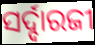
ସର୍ଦ୍ଦାରଜୀ